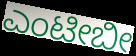
ಎಂಟೀಬೀ